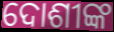
ଦୋଶୀଙ୍କ